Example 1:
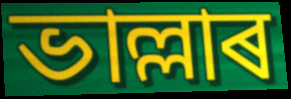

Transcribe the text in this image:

ভাল্লাৰ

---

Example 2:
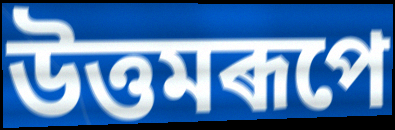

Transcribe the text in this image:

উত্তমৰূপে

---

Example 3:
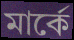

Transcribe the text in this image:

মাৰ্কে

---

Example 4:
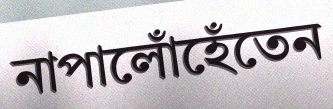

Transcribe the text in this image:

নাপালোঁহেঁতেন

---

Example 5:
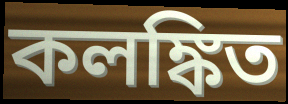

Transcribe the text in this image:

কলঙ্কিত